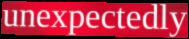
unexpectedly